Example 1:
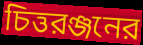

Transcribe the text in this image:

চিত্তরঞ্জনের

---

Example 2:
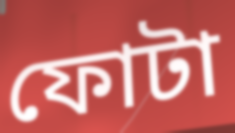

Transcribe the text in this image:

ফোটা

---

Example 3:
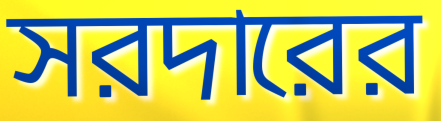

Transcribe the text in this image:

সরদারের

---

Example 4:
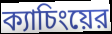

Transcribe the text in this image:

ক্যাচিংয়ের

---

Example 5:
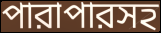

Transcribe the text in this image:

পারাপারসহ